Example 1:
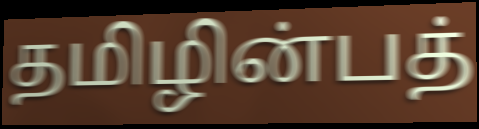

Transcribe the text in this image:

தமிழின்பத்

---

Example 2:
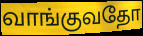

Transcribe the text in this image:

வாங்குவதோ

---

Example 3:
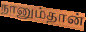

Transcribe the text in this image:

நானும்தான்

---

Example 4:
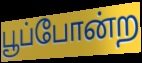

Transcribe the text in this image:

பூப்போன்ற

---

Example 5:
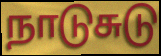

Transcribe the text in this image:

நாடுசுடு